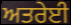
ਅਤਰੇਈ